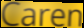
Caren